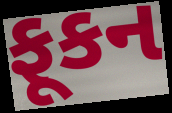
ફૂકન